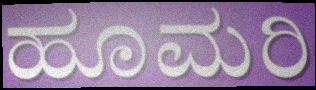
ಹೂಮರಿ